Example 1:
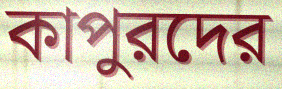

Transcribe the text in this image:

কাপুরদের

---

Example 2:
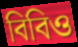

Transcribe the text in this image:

বিবিও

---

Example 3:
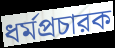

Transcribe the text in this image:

ধর্মপ্রচারক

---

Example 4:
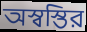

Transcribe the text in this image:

অস্বস্তির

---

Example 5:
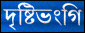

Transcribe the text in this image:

দৃষ্টিভংগি